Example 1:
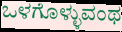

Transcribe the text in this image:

ಒಳಗೊಳ್ಳುವಂಥ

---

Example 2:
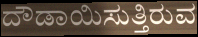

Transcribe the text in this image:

ದೌಡಾಯಿಸುತ್ತಿರುವ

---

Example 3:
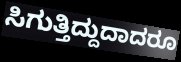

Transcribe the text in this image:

ಸಿಗುತ್ತಿದ್ದುದಾದರೂ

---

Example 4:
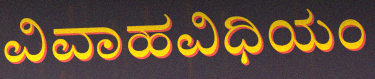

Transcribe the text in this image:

ವಿವಾಹವಿಧಿಯಂ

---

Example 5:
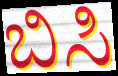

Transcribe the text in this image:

ಬಿಸಿ